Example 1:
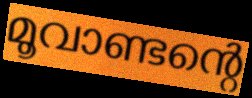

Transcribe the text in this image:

മൂവാണ്ടന്റെ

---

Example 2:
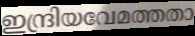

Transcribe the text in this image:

ഇന്ദ്രിയവേമത്തതാ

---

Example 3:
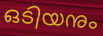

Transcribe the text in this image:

ഒടിയനും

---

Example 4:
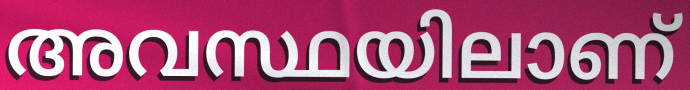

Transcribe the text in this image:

അവസ്ഥയിലാണ്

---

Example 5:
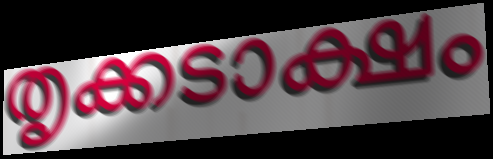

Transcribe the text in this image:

തൃക്കടാക്ഷം